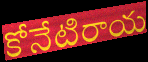
కోనేటిరాయ